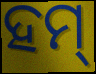
ହମ୍